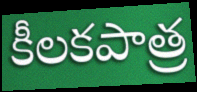
కీలకపాత్ర